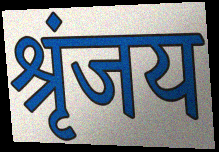
श्रृंजय